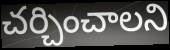
చర్చించాలని